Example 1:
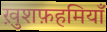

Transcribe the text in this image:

ख़ुशफ़हमियाँ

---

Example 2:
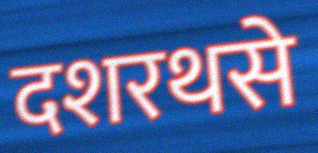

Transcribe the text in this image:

दशरथसे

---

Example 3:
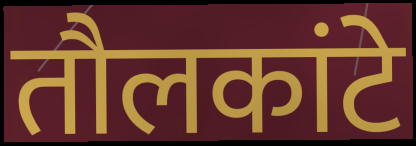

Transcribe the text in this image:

तौलकांटे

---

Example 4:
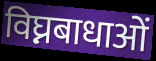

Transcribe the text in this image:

विघ्नबाधाओं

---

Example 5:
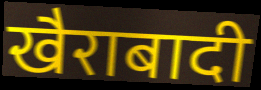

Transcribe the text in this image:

खैराबादी